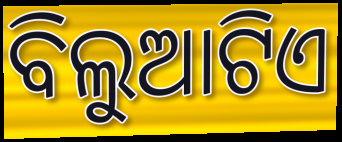
ବିଲୁଆଟିଏ